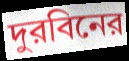
দুরবিনের